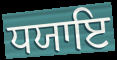
ਧਯਾਇ